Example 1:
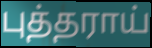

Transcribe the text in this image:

புத்தராய்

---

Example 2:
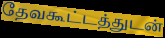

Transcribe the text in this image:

தேவகூட்டத்துடன்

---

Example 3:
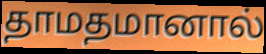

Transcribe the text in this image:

தாமதமானால்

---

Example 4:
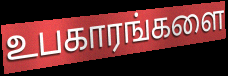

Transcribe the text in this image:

உபகாரங்களை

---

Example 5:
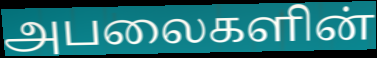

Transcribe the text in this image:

அபலைகளின்